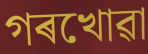
গৰখোৱা